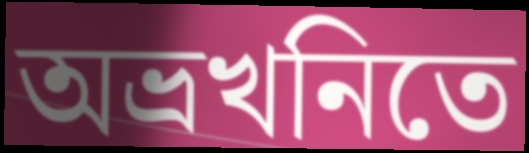
অভ্রখনিতে